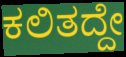
ಕಲಿತದ್ದೇ